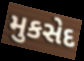
મુકસેદ